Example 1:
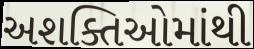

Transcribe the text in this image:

અશક્તિઓમાંથી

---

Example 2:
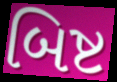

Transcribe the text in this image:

બિષ્ટ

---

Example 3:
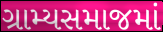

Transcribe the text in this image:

ગ્રામ્યસમાજમાં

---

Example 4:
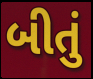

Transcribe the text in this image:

બીતું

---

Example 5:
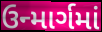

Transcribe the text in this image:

ઉન્માર્ગમાં